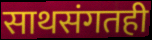
साथसंगतही